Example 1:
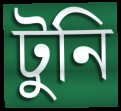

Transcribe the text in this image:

টুনি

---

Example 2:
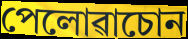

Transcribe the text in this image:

পেলোৱাচোন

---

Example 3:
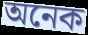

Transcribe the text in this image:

অনেক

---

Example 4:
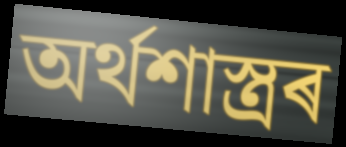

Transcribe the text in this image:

অৰ্থশাস্ত্ৰৰ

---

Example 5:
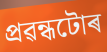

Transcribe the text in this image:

প্ৰৱন্ধটোৰ